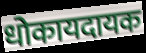
धोकायदायक